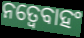
ନତ୍ୱେବାହଂ